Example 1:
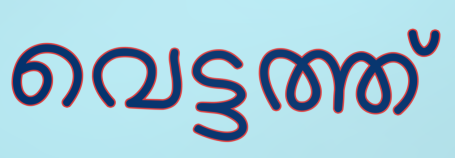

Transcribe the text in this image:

വെട്ടത്ത്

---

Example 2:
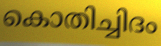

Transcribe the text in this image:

കൊതിച്ചിദം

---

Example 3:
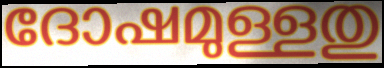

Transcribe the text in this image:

ദോഷമുള്ളതു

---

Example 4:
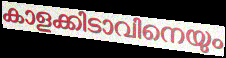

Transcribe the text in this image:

കാളക്കിടാവിനെയും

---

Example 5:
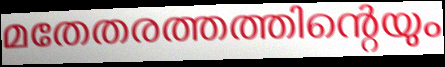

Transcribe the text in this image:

മതേതരത്തത്തിന്റെയും